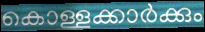
കൊള്ളക്കാർക്കും